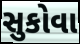
સુકોવા